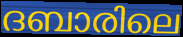
ദബാരിലെ